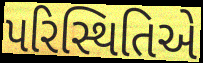
પરિસ્થિતિએ